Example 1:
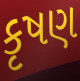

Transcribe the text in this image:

કૃષણ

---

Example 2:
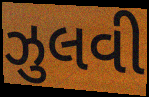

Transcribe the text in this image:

ઝુલવી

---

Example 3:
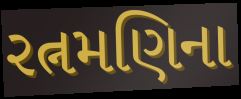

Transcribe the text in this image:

રત્નમણિના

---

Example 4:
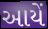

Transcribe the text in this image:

આયેં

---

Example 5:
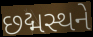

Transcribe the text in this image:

છદ્મસ્થને